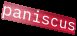
paniscus